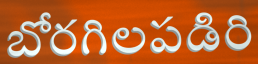
బోరగిలపడిరి